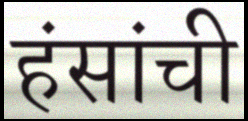
हंसांची